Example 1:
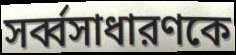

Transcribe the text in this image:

সর্ব্বসাধারণকে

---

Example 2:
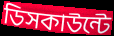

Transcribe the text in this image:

ডিসকাউন্টে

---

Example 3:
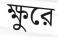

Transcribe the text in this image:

ক্ষুরে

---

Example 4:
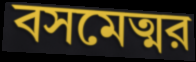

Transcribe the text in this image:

বসমেত্মর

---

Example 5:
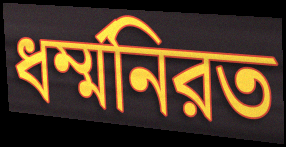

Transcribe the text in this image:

ধর্ম্মনিরত